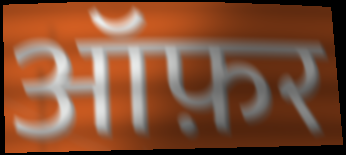
ऑफ़र